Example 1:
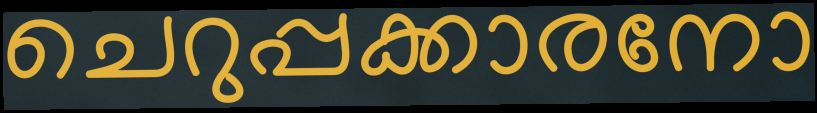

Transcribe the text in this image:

ചെറുപ്പക്കാരനോ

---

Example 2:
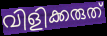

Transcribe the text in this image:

വിളിക്കരുത്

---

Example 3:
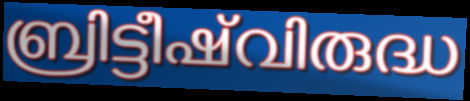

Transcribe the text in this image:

ബ്രിട്ടീഷ്‌വിരുദ്ധ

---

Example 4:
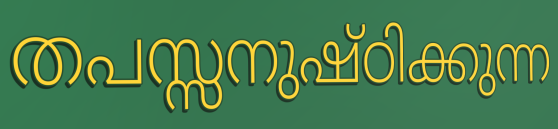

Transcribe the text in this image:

തപസ്സനുഷ്ഠിക്കുന്ന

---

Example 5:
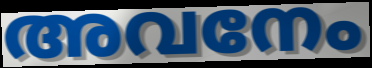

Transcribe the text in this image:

അവനേം